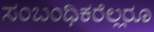
ಸಂಬಂಧಿಕರೆಲ್ಲರೂ